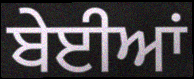
ਬੇਈਆਂ